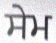
ਸੇਮ